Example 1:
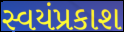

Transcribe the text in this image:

સ્વયંપ્રકાશ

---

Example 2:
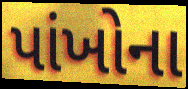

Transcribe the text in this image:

પાંખોના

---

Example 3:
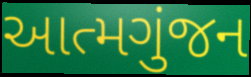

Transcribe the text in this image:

આત્મગુંજન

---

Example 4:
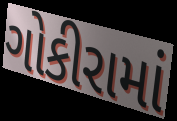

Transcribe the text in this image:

ગોકીરામાં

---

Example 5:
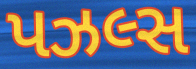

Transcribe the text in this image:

પઝલ્સ